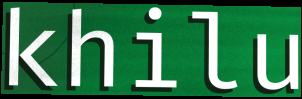
khilu